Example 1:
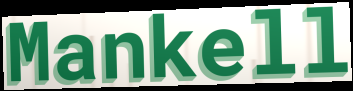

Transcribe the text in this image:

Mankell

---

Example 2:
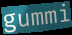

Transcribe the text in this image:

gummi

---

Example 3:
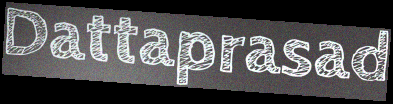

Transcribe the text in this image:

Dattaprasad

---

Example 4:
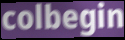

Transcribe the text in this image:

colbegin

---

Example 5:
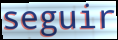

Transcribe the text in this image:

seguir